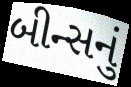
બીન્સનું